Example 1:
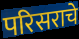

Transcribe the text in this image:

परिसराचे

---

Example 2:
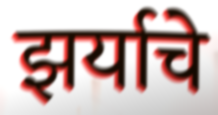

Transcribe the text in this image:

झर्याचे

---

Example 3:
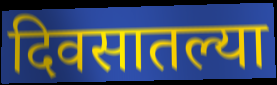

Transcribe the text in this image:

दिवसातल्या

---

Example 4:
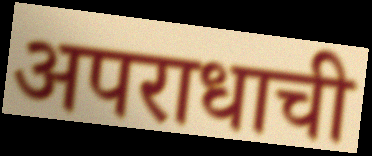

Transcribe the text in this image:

अपराधाची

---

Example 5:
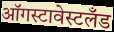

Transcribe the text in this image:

ऑगस्टावेस्टलँड